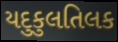
યદુકુલતિલક